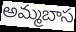
అమ్మబాస